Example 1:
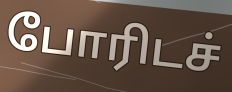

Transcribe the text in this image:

போரிடச்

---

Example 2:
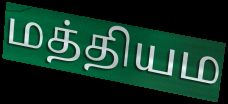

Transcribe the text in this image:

மத்தியம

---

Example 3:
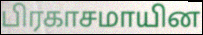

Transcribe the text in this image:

பிரகாசமாயின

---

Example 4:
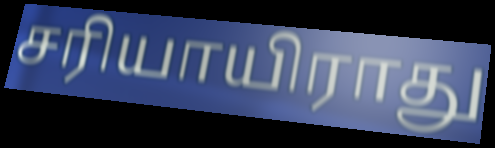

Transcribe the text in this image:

சரியாயிராது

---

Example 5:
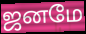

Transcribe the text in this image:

ஜனமே